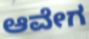
ಆವೇಗ